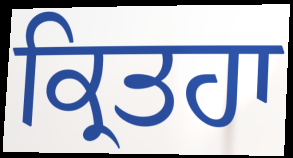
ਕ੍ਰਿਤਹਾ